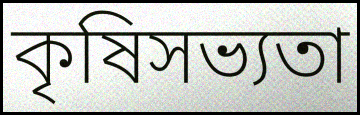
কৃষিসভ্যতা